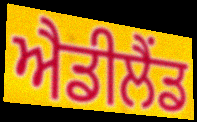
ਐਡੀਲੈਂਡ